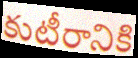
కుటీరానికి